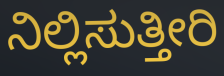
ನಿಲ್ಲಿಸುತ್ತೀರಿ